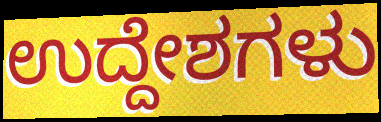
ಉದ್ದೇಶಗಳು